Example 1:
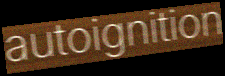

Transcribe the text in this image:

autoignition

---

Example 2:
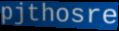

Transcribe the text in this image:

pjthosre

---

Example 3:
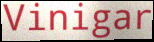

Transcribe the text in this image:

Vinigar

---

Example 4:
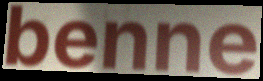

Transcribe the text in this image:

benne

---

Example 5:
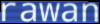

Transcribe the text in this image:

rawan